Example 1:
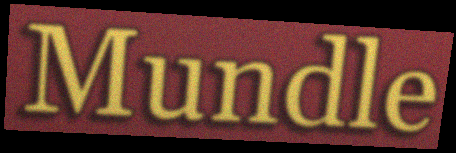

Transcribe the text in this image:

Mundle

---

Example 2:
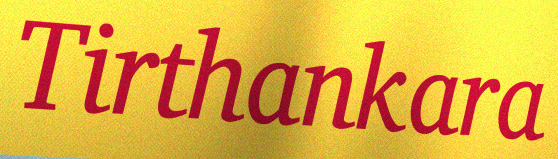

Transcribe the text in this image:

Tirthankara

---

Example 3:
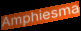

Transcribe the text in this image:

Amphiesma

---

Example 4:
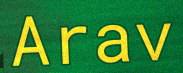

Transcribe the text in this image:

Arav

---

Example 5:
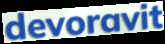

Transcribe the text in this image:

devoravit